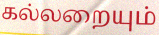
கல்லறையும்